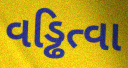
વડ્ઢિત્વા